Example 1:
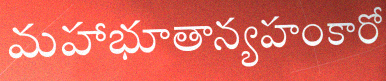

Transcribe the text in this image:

మహాభూతాన్యహంకారో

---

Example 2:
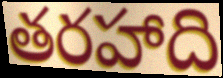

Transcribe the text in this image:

తరహాది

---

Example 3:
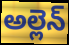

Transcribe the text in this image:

అల్లెన్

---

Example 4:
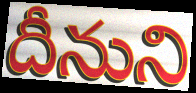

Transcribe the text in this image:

దీనుని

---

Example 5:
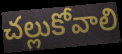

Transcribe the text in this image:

చల్లుకోవాలి